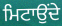
ਮਿਟਾਉਂਦੇ